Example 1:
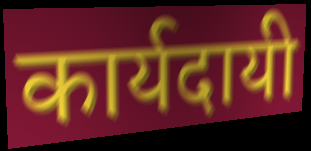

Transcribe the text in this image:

कार्यदायी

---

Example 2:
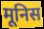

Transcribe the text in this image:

मूनिस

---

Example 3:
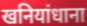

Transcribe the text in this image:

खनियांधाना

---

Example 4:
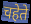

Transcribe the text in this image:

चहेते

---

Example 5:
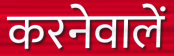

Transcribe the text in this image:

करनेवालें